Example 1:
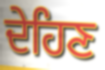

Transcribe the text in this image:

ਦੇਹਿਣ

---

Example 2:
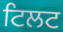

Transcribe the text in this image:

ਟਿਲਟ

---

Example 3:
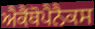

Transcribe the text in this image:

ਐਕੈਂਥੋਪੈਨੈਕਸ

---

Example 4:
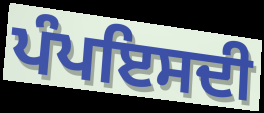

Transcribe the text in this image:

ਪੰਪਇਸਦੀ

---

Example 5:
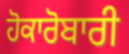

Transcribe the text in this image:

ਹੋਕਾਰੋਬਾਰੀ